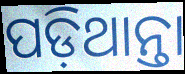
ପଡ଼ିଥାନ୍ତା